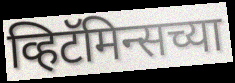
व्हिटॅमिन्सच्या